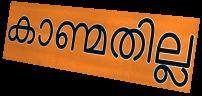
കാണ്മതില്ല